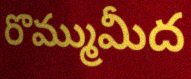
రొమ్ముమీద